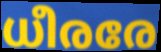
ധീരരേ